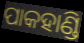
ପାକହାଣ୍ଡି